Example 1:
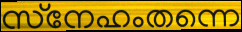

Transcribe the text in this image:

സ്‌നേഹംതന്നെ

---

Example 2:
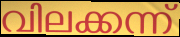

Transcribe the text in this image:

വിലക്കന്ന്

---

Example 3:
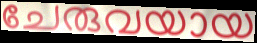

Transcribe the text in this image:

ചേരുവയായ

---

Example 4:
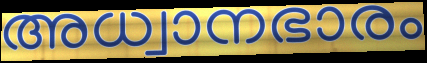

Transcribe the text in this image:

അധ്വാനഭാരം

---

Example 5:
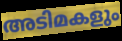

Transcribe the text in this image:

അടിമകളും